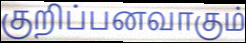
குறிப்பனவாகும்